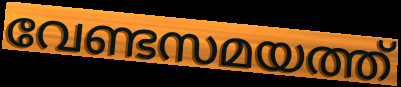
വേണ്ടസമയത്ത്